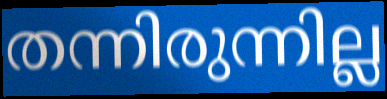
തന്നിരുന്നില്ല